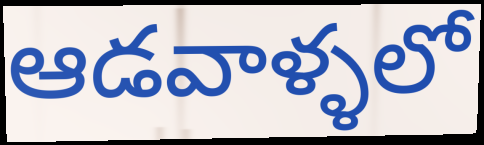
ఆడవాళ్ళలో